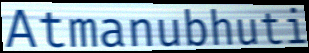
Atmanubhuti